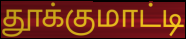
தூக்குமாட்டி